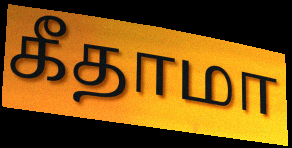
கீதாமா